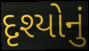
દૃશ્યોનું